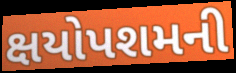
ક્ષયોપશમની